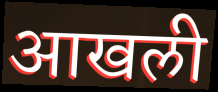
आखली